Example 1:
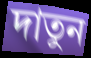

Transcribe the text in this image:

দাতুন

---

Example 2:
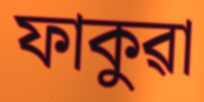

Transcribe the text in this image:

ফাকুৱা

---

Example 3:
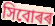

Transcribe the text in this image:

সিবোৰৰ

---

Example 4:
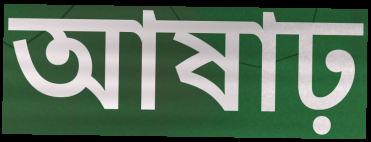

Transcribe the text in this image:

আষাঢ়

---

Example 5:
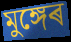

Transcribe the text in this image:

মুঙ্গেৰ